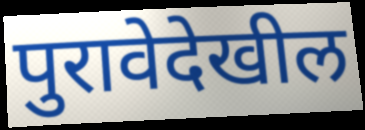
पुरावेदेखील